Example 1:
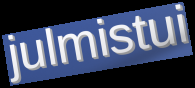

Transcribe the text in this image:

julmistui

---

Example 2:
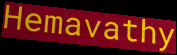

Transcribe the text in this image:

Hemavathy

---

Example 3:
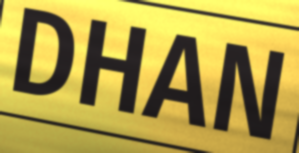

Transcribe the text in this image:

DHAN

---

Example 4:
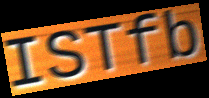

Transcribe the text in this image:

ISTfb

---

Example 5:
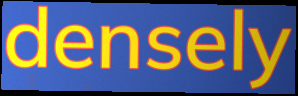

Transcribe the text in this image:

densely